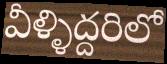
వీళ్ళిద్దరిలో